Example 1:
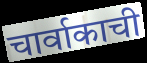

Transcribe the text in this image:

चार्वाकाची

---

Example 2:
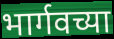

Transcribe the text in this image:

भार्गवच्या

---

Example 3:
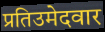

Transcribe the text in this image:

प्रतिउमेदवार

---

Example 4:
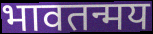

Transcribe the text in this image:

भावतन्मय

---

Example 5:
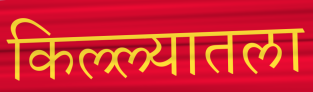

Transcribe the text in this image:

किल्ल्यातला